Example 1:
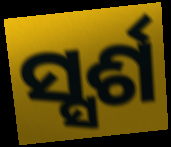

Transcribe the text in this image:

ସ୍ସର୍ଶ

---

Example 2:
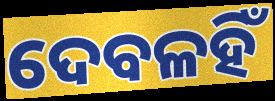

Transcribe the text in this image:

ଦେବଳହିଁ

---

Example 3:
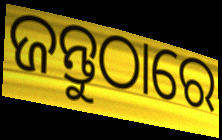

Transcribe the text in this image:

ଜନ୍ତୁଠାରେ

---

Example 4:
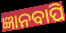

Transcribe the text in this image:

ଜ୍ଞାନବାପି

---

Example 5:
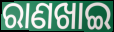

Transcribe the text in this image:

ରାଣଖାଇ